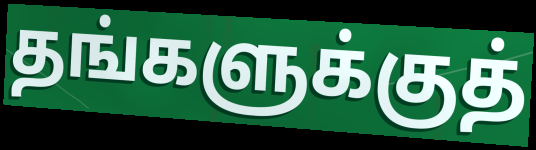
தங்களுக்குத்